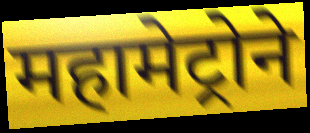
महामेट्रोने